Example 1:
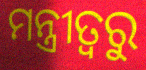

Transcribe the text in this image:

ମନ୍ତ୍ରୀତ୍ୱରୁ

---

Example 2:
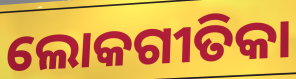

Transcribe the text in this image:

ଲୋକଗୀତିକା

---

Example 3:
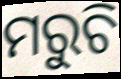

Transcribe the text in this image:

ମରୁଚି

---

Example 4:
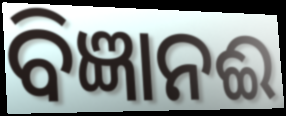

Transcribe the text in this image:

ବିଜ୍ଞାନଈ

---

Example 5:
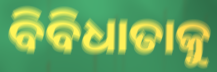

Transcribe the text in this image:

ବିବିଧାତାକୁ